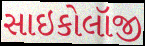
સાઇકોલૉજી